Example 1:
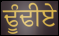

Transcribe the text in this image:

ਢੂੰਢੀਏ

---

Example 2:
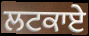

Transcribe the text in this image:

ਲਟਕਾਏ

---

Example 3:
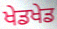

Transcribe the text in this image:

ਖੇਡਖੇਡ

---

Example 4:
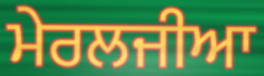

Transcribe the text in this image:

ਮੇਰਲਜੀਆ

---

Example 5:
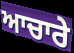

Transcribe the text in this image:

ਆਚਾਰੇ